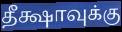
தீக்ஷாவுக்கு